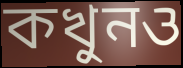
কখুনও